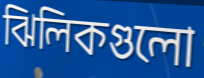
ঝিলিকগুলো